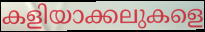
കളിയാക്കലുകളെ